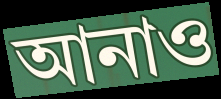
আনাও